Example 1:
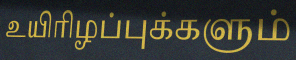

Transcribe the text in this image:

உயிரிழப்புக்களும்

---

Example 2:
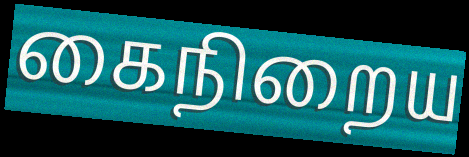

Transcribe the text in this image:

கைநிறைய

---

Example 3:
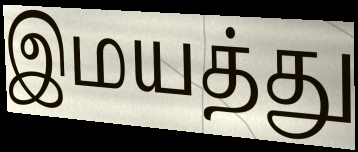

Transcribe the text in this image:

இமயத்து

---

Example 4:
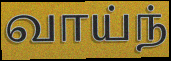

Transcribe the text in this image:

வாய்ந்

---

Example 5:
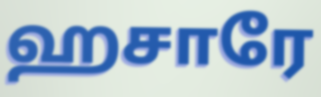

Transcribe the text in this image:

ஹசாரே